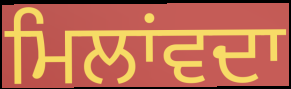
ਮਿਲਾਂਵਦਾ